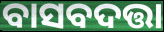
ବାସବଦତ୍ତା